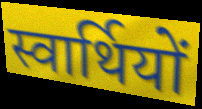
स्वार्थियों